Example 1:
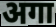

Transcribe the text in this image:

अगा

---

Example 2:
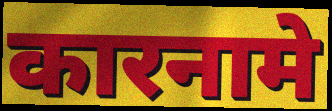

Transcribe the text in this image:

कारनामे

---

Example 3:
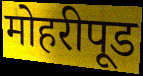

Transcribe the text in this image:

मोहरीपूड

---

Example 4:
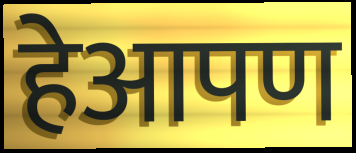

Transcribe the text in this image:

हेआपण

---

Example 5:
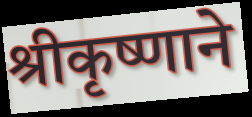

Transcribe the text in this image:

श्रीकृष्णाने